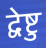
द्वेष्टु